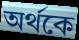
অৰ্থকে